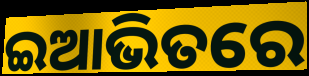
ଇଆଭିତରେ